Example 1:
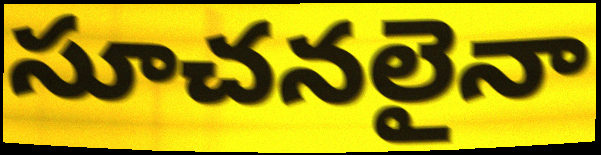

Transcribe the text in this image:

సూచనలైనా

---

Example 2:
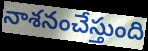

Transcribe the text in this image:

నాశనంచేస్తుంది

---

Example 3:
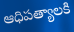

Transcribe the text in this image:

ఆధిపత్యాలకి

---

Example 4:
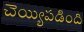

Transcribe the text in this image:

చెయ్యిపడింది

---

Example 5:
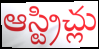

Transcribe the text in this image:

ఆస్ట్రిచ్లు